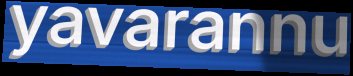
yavarannu